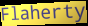
Flaherty